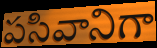
పసివానిగా